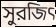
সুরজিৎ